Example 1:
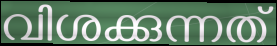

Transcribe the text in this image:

വിശക്കുന്നത്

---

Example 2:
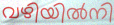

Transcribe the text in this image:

വഴിയിൽനി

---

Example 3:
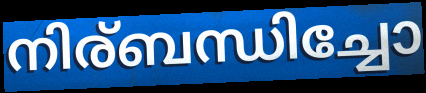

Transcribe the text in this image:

നിര്ബന്ധിച്ചോ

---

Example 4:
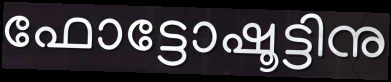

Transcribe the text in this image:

ഫോട്ടോഷൂട്ടിനു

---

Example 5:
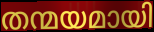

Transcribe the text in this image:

തന്മയമായി